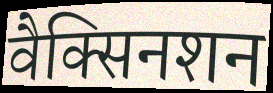
वैक्सिनशन